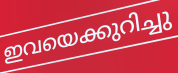
ഇവയെക്കുറിച്ചു